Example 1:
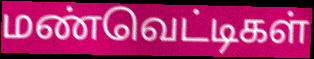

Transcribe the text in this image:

மண்வெட்டிகள்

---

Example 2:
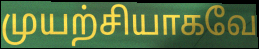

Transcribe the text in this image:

முயற்சியாகவே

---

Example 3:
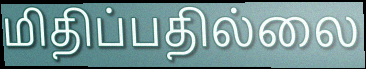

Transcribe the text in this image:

மிதிப்பதில்லை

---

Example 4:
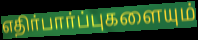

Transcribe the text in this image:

எதிர்பார்ப்புகளையும்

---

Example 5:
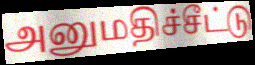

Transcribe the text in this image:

அனுமதிச்சீட்டு